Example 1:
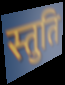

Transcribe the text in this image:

स्तुति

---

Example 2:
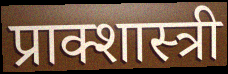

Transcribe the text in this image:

प्राक्शास्त्री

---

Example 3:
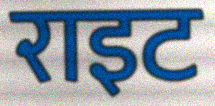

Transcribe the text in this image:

राइट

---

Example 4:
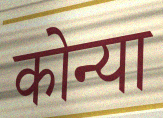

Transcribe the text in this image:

कोन्या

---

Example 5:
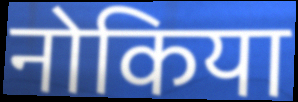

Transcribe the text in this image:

नोकिया